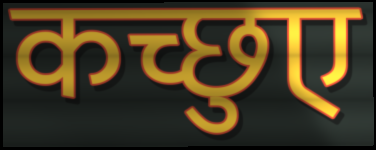
कच्छुए